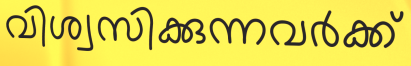
വിശ്വസിക്കുന്നവർക്ക്